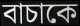
বাচাকে